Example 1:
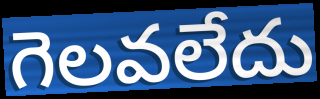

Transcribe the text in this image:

గెలవలేదు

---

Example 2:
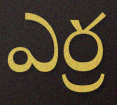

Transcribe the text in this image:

ఎర్ర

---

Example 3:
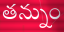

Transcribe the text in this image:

తన్నుం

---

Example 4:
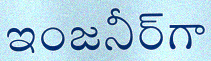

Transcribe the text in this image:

ఇంజనీర్‌గా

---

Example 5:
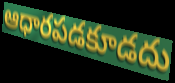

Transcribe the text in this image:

ఆధారపడకూడదు